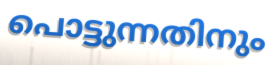
പൊട്ടുന്നതിനും